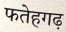
फतेहगढ़